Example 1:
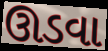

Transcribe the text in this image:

ઊડવા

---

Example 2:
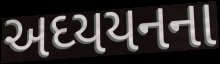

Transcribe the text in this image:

અઘ્યયનના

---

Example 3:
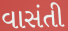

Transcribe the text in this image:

વાસંતી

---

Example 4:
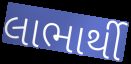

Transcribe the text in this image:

લાભાર્થી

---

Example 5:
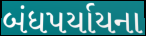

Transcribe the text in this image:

બંધપર્યાયના